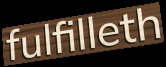
fulfilleth